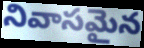
నివాసమైన